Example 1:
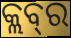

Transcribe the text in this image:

କ୍ଲବ୍‌ର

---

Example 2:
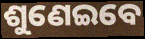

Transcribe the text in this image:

ଶୁଣେଇବେ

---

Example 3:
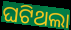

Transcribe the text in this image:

ଘଟିଥଲା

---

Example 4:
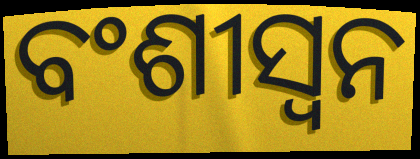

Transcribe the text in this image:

ବଂଶୀସ୍ୱନ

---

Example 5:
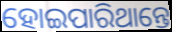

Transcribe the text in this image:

ହୋଇପାରିଥାନ୍ତେ